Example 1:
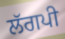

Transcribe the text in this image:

ਲੱਗਪੀ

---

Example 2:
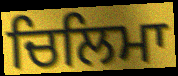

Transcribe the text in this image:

ਚਿਲਿਮਾ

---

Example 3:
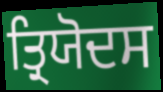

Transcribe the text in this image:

ਤ੍ਰਿਯੋਦਸ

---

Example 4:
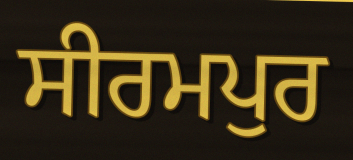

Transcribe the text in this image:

ਸੀਰਮਪੁਰ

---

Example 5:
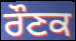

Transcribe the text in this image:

ਰੌਣਕ